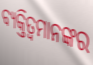
ବ୍ୟକ୍ତିତ୍ୱମାନଙ୍କର